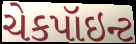
ચેકપૉઇન્ટ